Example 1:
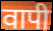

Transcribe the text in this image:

वापी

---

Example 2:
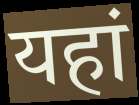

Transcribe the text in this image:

यहां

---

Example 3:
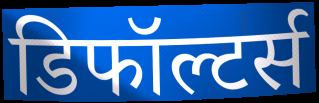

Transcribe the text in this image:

डिफॉल्टर्स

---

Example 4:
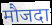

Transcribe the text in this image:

मौजदा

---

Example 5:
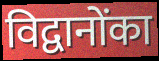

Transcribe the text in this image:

विद्वानोंका